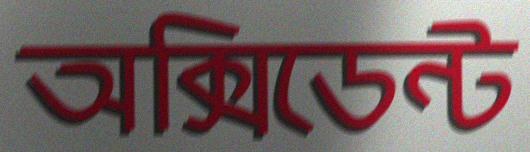
অক্সিডেন্ট